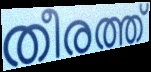
തീരത്ത്